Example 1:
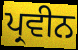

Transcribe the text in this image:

ਪ੍ਰਵੀਨ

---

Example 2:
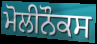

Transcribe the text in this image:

ਮੋਲੀਨੌਕਸ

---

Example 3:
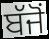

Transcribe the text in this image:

ਬੱਜੋਂ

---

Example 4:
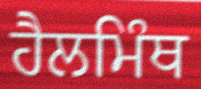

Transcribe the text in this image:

ਹੈਲਮਿੰਥ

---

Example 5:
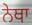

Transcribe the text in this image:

ਨੇਥਾ